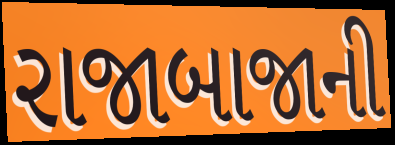
રાજાબાજાની